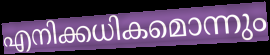
എനിക്കധികമൊന്നും